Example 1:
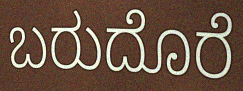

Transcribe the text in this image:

ಬರುದೊರೆ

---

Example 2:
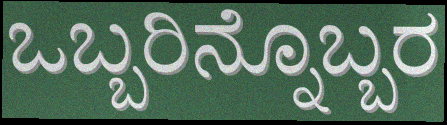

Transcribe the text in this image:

ಒಬ್ಬರಿನ್ನೊಬ್ಬರ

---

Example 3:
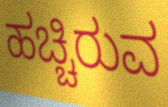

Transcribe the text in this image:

ಹಚ್ಚಿರುವ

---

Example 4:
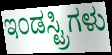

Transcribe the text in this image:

ಇಂಡಸ್ಟ್ರಿಗಳು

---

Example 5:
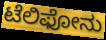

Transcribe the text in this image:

ಟೆಲಿಫೋನು